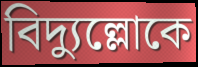
বিদ্যুল্লোকে